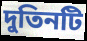
দুতিনটি